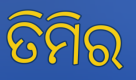
ତିମିର